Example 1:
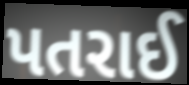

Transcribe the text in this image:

પતરાઈ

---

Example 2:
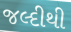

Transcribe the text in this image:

જલ્દીથી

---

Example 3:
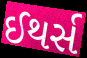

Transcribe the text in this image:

ઈથર્સ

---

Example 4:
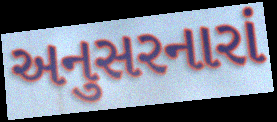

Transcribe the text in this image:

અનુસરનારાં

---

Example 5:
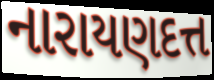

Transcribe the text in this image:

નારાયણદત્ત